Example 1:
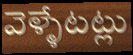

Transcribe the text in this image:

వెళ్ళేటట్లు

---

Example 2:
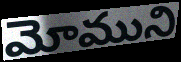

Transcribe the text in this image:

మోముని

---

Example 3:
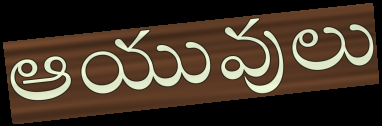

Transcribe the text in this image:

ఆయువులు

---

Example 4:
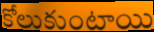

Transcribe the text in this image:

కోలుకుంటాయి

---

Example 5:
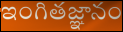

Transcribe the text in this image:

ఇంగితజ్ఞానం